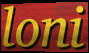
loni